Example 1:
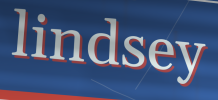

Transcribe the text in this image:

lindsey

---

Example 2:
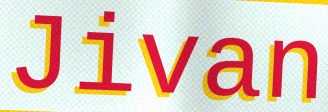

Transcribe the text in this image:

Jivan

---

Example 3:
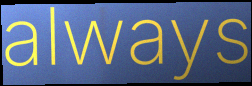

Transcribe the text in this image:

always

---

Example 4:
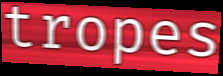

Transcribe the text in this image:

tropes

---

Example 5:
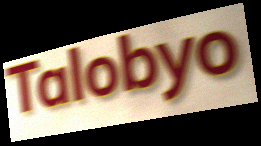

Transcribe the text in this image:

Talobyo